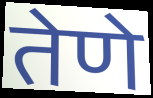
तेणे